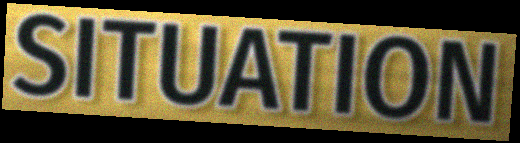
SITUATION